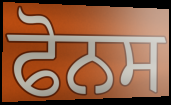
ਫੋਨਸ